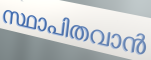
സ്ഥാപിതവാൻ